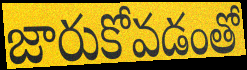
జారుకోవడంతో